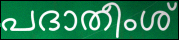
പദാതീംശ്